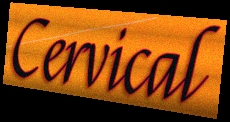
Cervical